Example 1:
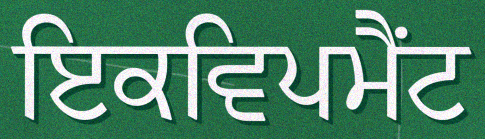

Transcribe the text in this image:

ਇਕਵਿਪਮੈਂਟ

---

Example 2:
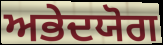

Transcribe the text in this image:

ਅਭੇਦਯੋਗ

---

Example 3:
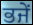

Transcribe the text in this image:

ਭਜੇਂ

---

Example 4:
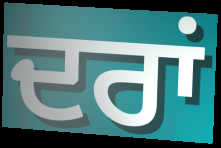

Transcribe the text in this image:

ਦਰਾਂ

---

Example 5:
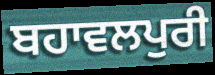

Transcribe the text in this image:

ਬਹਾਵਲਪੁਰੀ